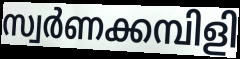
സ്വർണക്കമ്പിളി